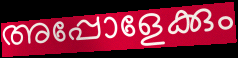
അപ്പോളേക്കും